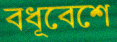
বধূবেশে